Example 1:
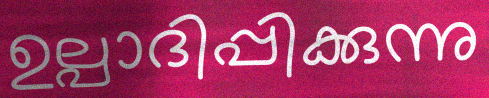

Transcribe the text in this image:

ഉല്പാദിപ്പിക്കുന്നു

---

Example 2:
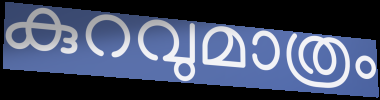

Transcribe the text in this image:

കുറവുമാത്രം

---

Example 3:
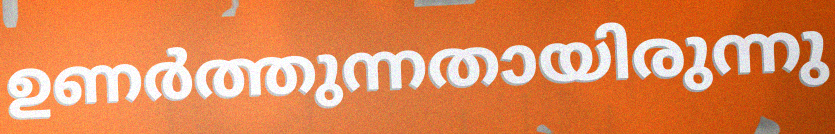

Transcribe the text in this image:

ഉണർത്തുന്നതായിരുന്നു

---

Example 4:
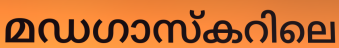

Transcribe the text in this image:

മഡഗാസ്കറിലെ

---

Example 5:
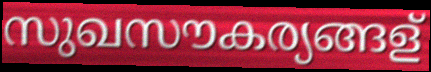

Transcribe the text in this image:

സുഖസൗകര്യങ്ങള്